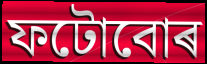
ফটোবোৰ